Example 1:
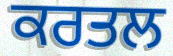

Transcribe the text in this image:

ਕਰਤਲ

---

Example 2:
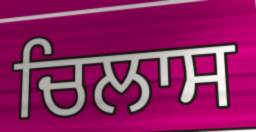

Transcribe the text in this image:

ਚਿਲਾਸ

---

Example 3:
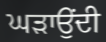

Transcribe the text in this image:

ਘੜਾਉਂਦੀ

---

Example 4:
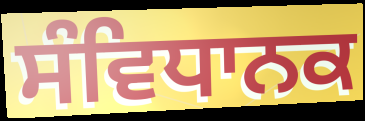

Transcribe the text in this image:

ਸੰਵਿਧਾਨਕ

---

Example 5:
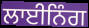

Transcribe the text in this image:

ਲਾਈਨਿੰਗ